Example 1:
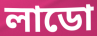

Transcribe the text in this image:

লাডো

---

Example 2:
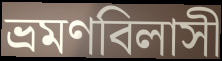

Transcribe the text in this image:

ভ্রমণবিলাসী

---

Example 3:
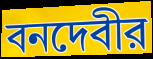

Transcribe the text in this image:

বনদেবীর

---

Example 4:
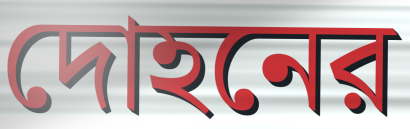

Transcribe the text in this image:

দোহনের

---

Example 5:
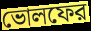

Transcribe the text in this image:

ভোলফের